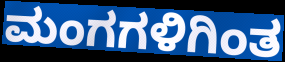
ಮಂಗಗಳಿಗಿಂತ